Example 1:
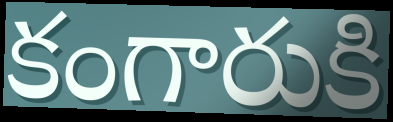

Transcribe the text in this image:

కంగారుకి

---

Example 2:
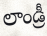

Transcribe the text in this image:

లాండ్రీ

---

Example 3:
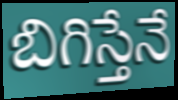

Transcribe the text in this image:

బిగిస్తేనే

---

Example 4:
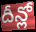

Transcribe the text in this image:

దీన్లో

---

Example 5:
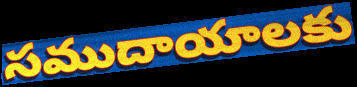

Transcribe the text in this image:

సముదాయాలకు